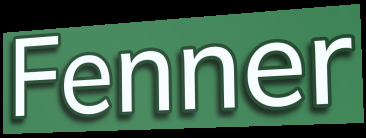
Fenner